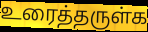
உரைத்தருள்க